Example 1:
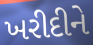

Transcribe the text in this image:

ખરીદીને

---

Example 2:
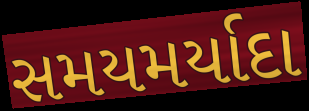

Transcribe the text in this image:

સમયમર્યાદા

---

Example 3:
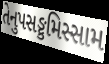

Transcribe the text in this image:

તેનુપસઙ્કમિસ્સામ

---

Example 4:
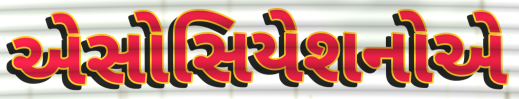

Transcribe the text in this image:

એસોસિયેશનોએ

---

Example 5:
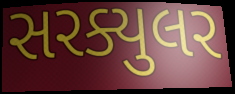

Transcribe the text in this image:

સરક્યુલર